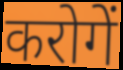
करोगें